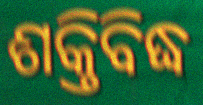
ଶକ୍ତିବିଦ୍ଧ